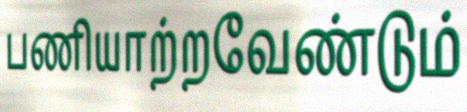
பணியாற்றவேண்டும்